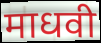
माधवी